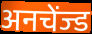
अनचेंज्ड